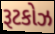
રૂટકોઝ